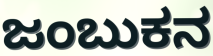
ಜಂಬುಕನ